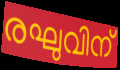
രഘുവിന്